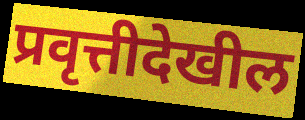
प्रवृत्तीदेखील